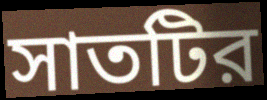
সাতটির